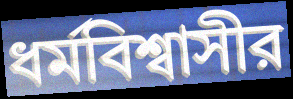
ধর্মবিশ্বাসীর